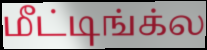
மீட்டிங்க்ல